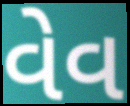
વેવ